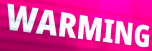
WARMING